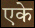
एके